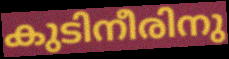
കുടിനീരിനു